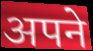
अपने